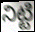
నిట్టి